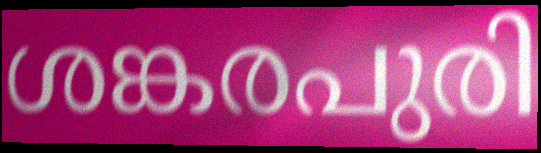
ശങ്കരപുരി